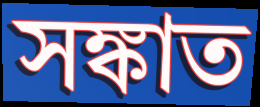
সঙ্কাত